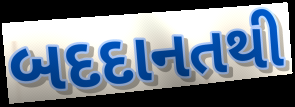
બદદાનતથી